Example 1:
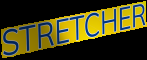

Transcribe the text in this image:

STRETCHER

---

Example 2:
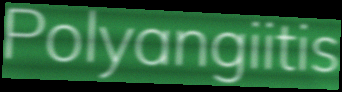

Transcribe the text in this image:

Polyangiitis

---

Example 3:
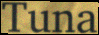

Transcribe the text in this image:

Tuna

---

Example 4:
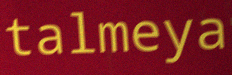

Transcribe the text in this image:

talmeya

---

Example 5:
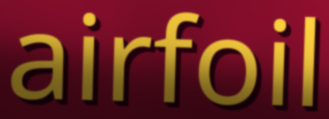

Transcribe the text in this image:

airfoil